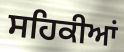
ਸਹਿਕੀਆਂ